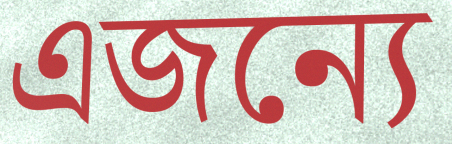
এজন্যে